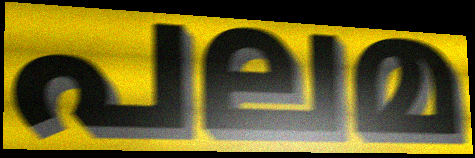
പലമ